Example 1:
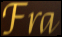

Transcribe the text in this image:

Fra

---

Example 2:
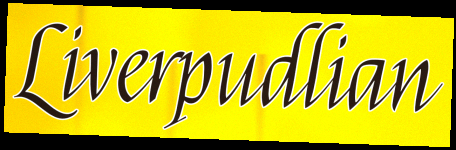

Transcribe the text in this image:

Liverpudlian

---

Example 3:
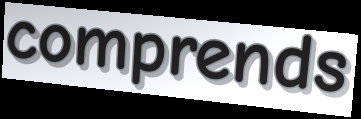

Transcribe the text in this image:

comprends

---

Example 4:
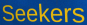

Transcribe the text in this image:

Seekers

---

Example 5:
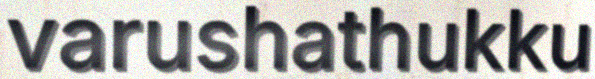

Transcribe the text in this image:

varushathukku